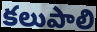
కలుపాలి